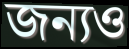
জন্যও